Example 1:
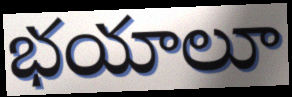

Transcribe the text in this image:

భయాలూ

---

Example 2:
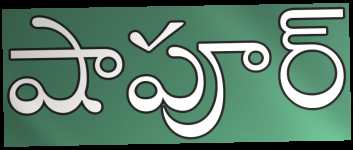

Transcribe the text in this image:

షాపూర్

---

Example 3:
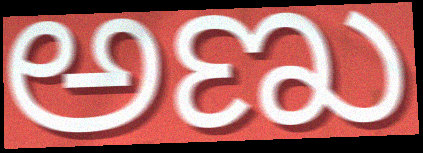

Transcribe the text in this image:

అణు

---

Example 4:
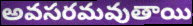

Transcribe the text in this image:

అవసరమవుతాయి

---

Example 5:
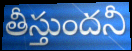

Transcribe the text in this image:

తీస్తుందనీ